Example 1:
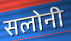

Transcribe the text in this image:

सलोनी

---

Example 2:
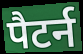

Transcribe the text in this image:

पैटर्न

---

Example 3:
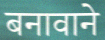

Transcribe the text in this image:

बनावाने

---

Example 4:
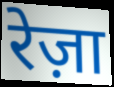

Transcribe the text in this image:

रेज़ा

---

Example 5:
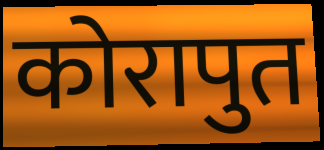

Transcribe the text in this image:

कोरापुत